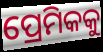
ପ୍ରେମିକକୁ